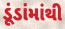
ડૂંડાંમાંથી